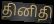
தினிதி